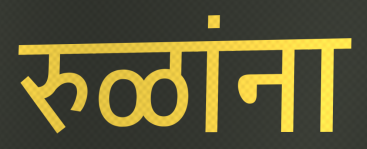
रुळांना